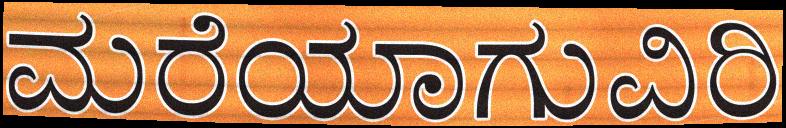
ಮರೆಯಾಗುವಿರಿ